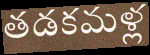
తడకమళ్ల